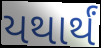
યથાર્થં